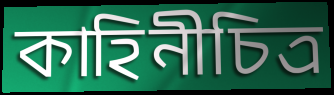
কাহিনীচিত্র